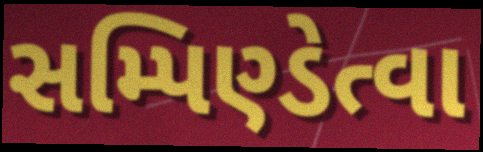
સમ્પિણ્ડેત્વા